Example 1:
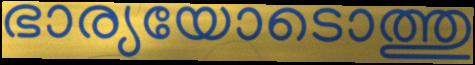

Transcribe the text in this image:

ഭാര്യയോടൊത്തു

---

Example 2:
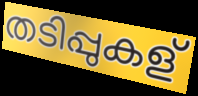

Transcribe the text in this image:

തടിപ്പുകള്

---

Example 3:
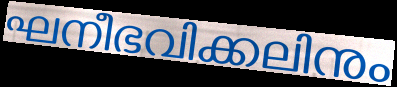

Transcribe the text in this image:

ഘനീഭവിക്കലിനും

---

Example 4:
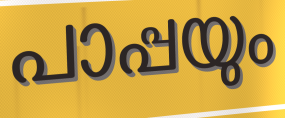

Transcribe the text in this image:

പാപ്പയും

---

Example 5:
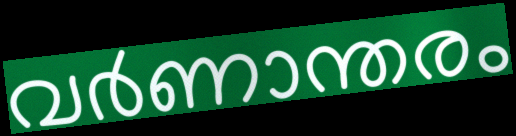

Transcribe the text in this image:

വർണാന്തരം